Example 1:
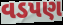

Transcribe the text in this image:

વડપણ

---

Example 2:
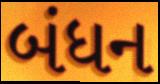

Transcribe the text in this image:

બંધન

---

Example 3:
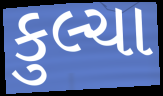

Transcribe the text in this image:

કુલ્ચા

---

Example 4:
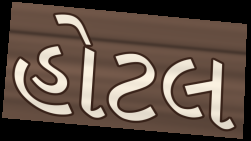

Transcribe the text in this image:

હોટલ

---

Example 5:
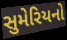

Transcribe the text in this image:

સુમેરિયનો